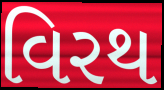
વિરથ